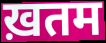
ख़तम